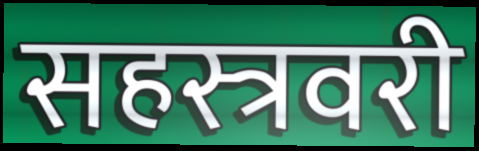
सहस्त्रवरी